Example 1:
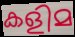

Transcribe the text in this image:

കളിമ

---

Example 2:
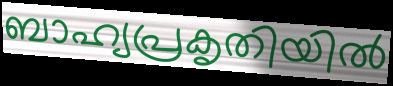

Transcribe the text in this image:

ബാഹ്യപ്രകൃതിയിൽ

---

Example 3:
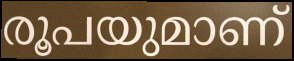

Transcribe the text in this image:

രൂപയുമാണ്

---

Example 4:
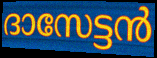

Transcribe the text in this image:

ദാസേട്ടൻ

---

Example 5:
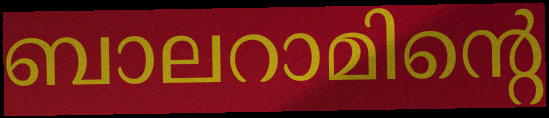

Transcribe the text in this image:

ബാലറാമിന്റെ